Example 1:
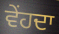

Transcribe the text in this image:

ਵੇਂਹਦਾ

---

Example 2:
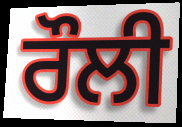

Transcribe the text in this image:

ਰੌਲੀ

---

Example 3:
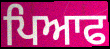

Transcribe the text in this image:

ਪਿਆਫ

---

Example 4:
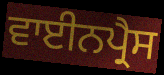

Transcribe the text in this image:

ਵਾਈਨਪ੍ਰੈਸ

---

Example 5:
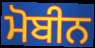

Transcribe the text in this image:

ਮੋਬੀਨ